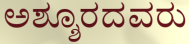
ಅಶ್ಶೂರದವರು